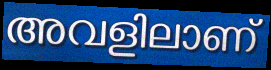
അവളിലാണ്